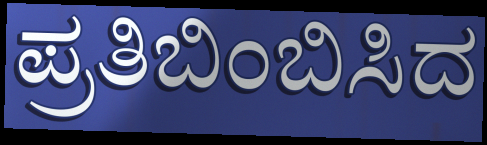
ಪ್ರತಿಬಿಂಬಿಸಿದ